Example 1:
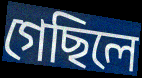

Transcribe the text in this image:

গেছিলে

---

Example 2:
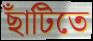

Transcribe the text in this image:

ছাঁটিতে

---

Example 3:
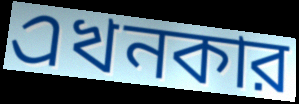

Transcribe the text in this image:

এখনকার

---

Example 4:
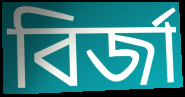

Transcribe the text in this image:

বির্জা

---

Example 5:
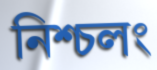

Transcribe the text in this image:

নিশ্চলং